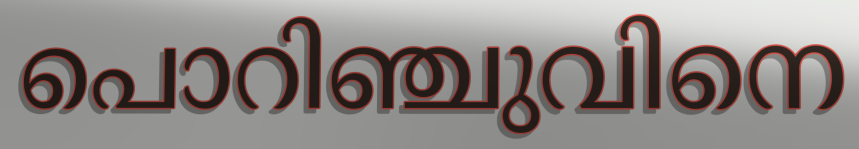
പൊറിഞ്ചുവിനെ